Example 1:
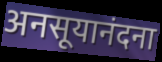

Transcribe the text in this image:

अनसूयानंदना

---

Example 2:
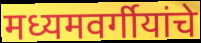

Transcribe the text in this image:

मध्यमवर्गीयांचे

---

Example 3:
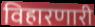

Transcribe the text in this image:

विहारणारी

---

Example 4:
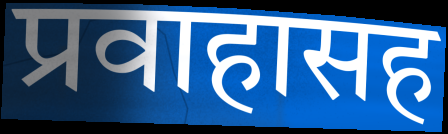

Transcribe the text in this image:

प्रवाहासह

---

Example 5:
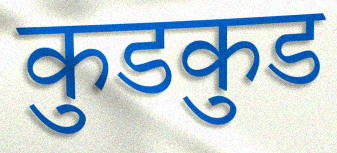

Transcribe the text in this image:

कुडकुड